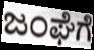
ಜಂಘೆಗೆ